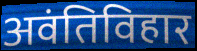
अवंतिविहार